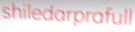
shiledarprafull